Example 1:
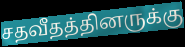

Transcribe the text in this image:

சதவீதத்தினருக்கு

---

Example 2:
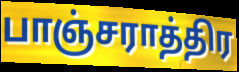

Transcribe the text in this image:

பாஞ்சராத்திர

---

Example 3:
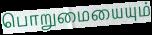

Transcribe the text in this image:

பொறுமையையும்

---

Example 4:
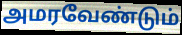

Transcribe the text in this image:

அமரவேண்டும்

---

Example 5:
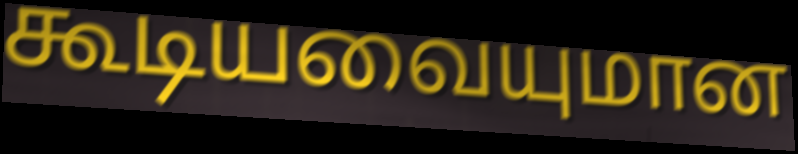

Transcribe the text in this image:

கூடியவையுமான